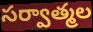
సర్వాత్మల